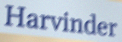
Harvinder